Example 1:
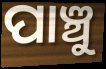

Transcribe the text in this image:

ପାଞ୍ଚୁ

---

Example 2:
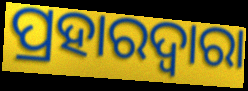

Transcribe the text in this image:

ପ୍ରହାରଦ୍ଵାରା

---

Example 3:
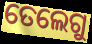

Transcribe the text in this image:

ତେଲେଗୁ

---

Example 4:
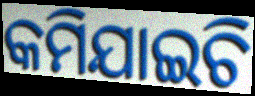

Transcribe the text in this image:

କମିଯାଇଚି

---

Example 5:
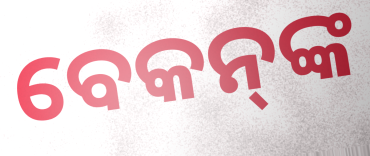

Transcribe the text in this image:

ବେକନ୍‌ଙ୍କ